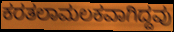
ಕರತಲಾಮಲಕವಾಗಿದ್ದವು